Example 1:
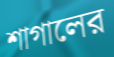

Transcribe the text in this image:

শাগালের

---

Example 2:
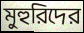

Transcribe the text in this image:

মুহুরিদের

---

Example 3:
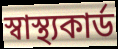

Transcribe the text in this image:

স্বাস্থ্যকার্ড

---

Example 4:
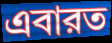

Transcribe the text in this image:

এবারত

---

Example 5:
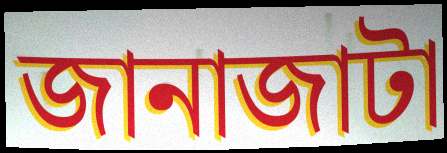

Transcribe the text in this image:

জানাজাটা